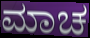
ಮಾಚ